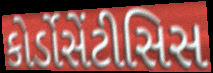
કોર્ડોસેંટીસિસ